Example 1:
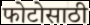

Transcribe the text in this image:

फोटोसाठी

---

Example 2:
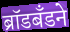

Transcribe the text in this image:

ब्रॉडबँडने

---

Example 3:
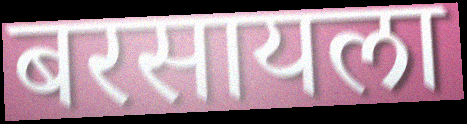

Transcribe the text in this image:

बरसायला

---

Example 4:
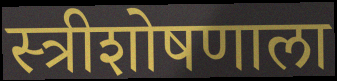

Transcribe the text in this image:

स्त्रीशोषणाला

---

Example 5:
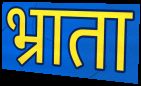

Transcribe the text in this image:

भ्राता